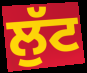
ਲੁੱਟ